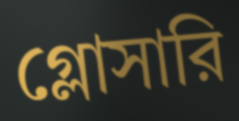
গ্লোসারি